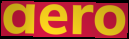
aero